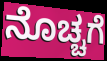
ನೊಚ್ಚಗೆ